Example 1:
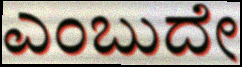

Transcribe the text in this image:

ಎಂಬುದೇ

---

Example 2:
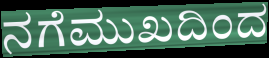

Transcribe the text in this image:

ನಗೆಮುಖದಿಂದ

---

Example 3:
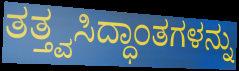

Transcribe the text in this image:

ತತ್ತ್ವಸಿದ್ಧಾಂತಗಳನ್ನು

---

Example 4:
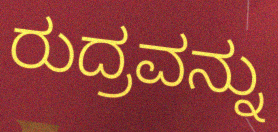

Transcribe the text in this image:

ರುದ್ರವನ್ನು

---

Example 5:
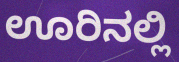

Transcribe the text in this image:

ಊರಿನಲ್ಲಿ